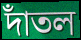
দাঁতল